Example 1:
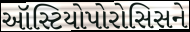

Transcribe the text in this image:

ઑસ્ટિયોપોરોસિસને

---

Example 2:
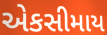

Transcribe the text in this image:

એકસીમાય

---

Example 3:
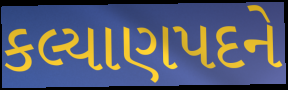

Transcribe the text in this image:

કલ્યાણપદને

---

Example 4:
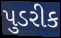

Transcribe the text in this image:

પુડરીક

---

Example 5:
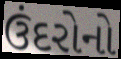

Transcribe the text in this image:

ઉંદરોનો